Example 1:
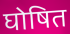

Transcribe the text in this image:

घोषित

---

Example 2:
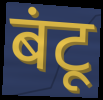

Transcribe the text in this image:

बंटू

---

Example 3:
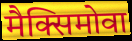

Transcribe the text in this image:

मैक्सिमोवा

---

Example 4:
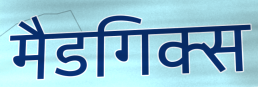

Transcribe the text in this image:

मैडगिक्स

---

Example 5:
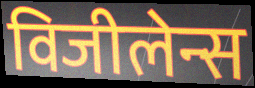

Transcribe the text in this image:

विजीलेन्स